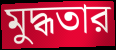
মুদ্ধতার